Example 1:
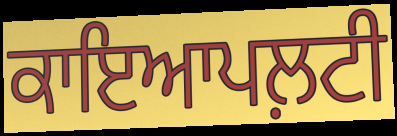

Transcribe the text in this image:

ਕਾਇਆਪਲ਼ਟੀ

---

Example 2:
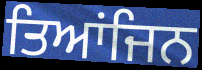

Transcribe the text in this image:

ਤਿਆਂਜਿਨ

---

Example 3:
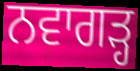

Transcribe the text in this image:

ਨਵਾਗੜ੍ਹ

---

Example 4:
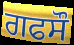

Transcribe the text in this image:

ਗਫਸੌ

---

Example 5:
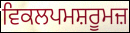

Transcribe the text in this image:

ਵਿਕਲਪਮਸ਼ਰੂਮਜ਼